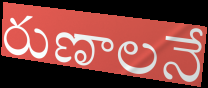
రుణాలనే